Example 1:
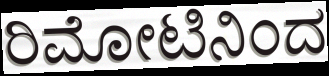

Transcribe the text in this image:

ರಿಮೋಟಿನಿಂದ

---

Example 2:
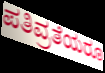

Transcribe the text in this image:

ಪತಿವ್ರತೆಯರೂ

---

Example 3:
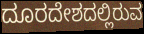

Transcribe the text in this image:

ದೂರದೇಶದಲ್ಲಿರುವ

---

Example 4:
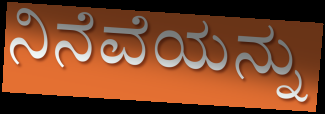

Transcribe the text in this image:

ನಿನೆವೆಯನ್ನು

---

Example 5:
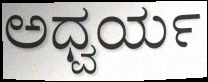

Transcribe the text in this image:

ಅಧ್ವರ್ಯ